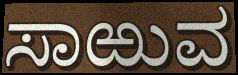
ಸಾಱುವ